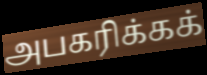
அபகரிக்கக்